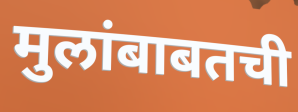
मुलांबाबतची